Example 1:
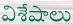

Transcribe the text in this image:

విశేషాలు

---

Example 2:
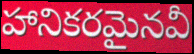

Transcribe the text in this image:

హానికరమైనవీ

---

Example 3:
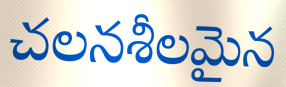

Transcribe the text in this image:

చలనశీలమైన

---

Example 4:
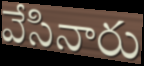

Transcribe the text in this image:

వేసినారు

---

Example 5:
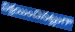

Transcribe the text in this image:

విక్రయించినట్లుగా